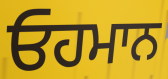
ਓਹਮਾਨ